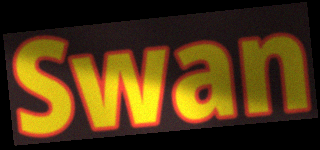
Swan